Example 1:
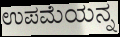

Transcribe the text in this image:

ಉಪಮೆಯನ್ನ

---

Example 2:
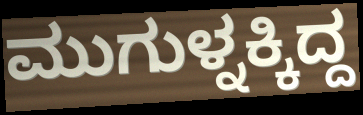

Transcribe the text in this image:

ಮುಗುಳ್ನಕ್ಕಿದ್ದ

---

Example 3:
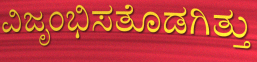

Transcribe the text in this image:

ವಿಜೃಂಭಿಸತೊಡಗಿತ್ತು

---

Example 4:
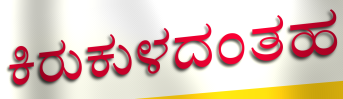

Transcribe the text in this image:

ಕಿರುಕುಳದಂತಹ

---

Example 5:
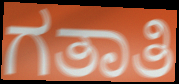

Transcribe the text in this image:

ಗತಾತಿ